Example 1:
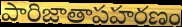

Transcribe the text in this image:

పారిజాతాపహరణం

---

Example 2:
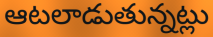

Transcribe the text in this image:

ఆటలాడుతున్నట్లు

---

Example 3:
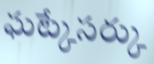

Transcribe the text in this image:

ఘట్కేసర్కు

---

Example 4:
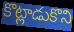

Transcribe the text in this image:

కొట్లాడుకొని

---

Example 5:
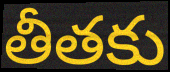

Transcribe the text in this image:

తీతకు